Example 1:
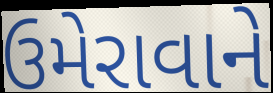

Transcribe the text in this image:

ઉમેરાવાને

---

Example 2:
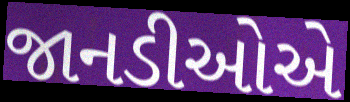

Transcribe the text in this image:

જાનડીઓએ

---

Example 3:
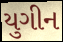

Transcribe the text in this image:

યુગીન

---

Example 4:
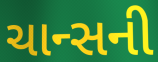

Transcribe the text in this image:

ચાન્સની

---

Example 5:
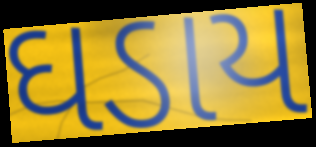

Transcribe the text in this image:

ઘડાય